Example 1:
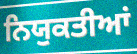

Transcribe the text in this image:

ਨਿਯੁਕਤੀਆਂ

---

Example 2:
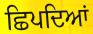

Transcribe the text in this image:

ਛਿਪਦਿਆਂ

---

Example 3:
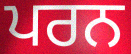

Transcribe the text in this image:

ਪਰਨ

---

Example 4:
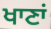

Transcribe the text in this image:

ਖਾਣਾਂ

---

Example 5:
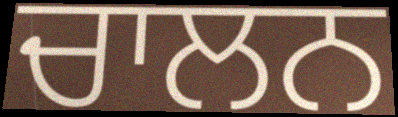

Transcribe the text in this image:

ਚਾਲਨ